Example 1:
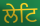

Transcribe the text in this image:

ਲੇਟਿ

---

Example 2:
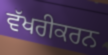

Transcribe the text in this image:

ਵੱਖਰੀਕਰਨ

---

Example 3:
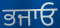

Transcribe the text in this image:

ਭਜਾਓ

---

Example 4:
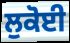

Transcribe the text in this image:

ਲੁਕੋਈ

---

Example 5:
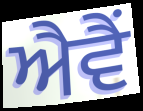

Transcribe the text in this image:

ਐਵੈਂ